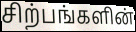
சிற்பங்களின்